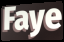
Faye